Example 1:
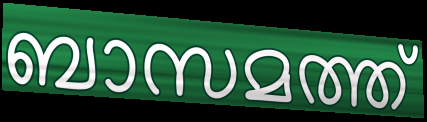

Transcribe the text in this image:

ബാസമത്ത്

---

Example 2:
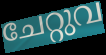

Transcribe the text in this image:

ചേറ്റുവ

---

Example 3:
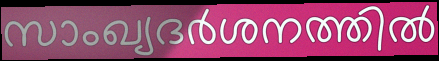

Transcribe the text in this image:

സാംഖ്യദർശനത്തിൽ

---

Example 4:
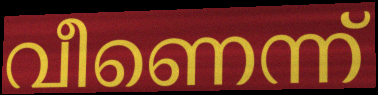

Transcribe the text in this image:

വീണെന്ന്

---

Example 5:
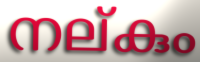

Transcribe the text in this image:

നല്‌കും